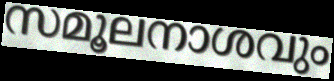
സമൂലനാശവും